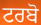
ਟਰਬੋ